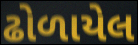
ઢોળાયેલ